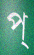
প্